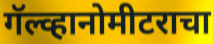
गॅल्व्हानोमीटराचा